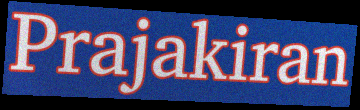
Prajakiran